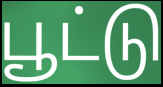
பூட்டு